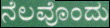
ನೆಲವೊಂದು